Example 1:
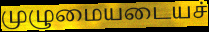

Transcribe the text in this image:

முழுமையடையச்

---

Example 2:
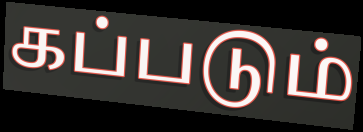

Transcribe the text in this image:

கப்படும்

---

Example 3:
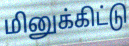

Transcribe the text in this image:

மினுக்கிட்டு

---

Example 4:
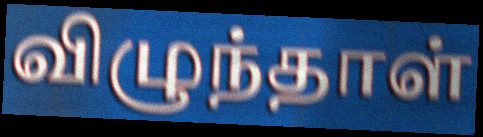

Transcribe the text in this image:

விழுந்தாள்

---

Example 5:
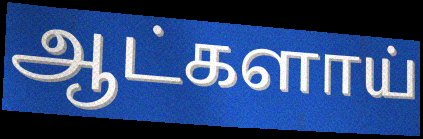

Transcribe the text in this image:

ஆட்களாய்